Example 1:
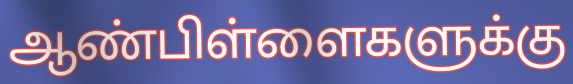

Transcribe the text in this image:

ஆண்பிள்ளைகளுக்கு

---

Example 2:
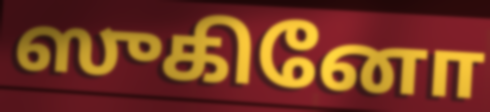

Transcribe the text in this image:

ஸுகினோ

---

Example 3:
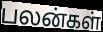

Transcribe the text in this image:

பலன்கள்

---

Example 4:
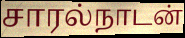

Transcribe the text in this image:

சாரல்நாடன்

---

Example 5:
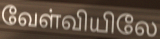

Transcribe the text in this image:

வேள்வியிலே